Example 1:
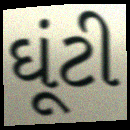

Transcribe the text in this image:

ઘૂંટી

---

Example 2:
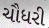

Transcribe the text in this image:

ચૌધરી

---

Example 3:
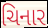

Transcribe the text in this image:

ચિનાર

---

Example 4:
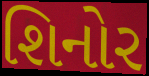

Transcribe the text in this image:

શિનોર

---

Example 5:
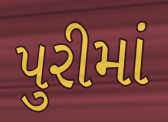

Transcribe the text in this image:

પુરીમાં